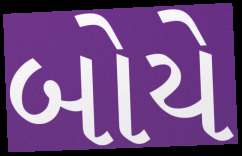
બોયે